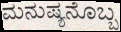
ಮನುಷ್ಯನೊಬ್ಬ